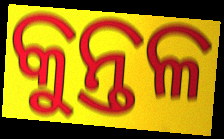
କୁନ୍ତଳ